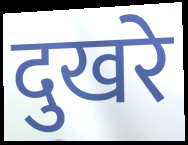
दुखरे